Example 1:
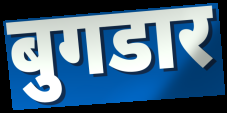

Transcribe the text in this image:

बुगडार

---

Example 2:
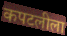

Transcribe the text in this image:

कपटलीला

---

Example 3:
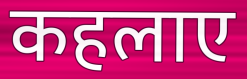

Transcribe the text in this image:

कहलाए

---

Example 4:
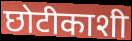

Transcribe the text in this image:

छोटीकाशी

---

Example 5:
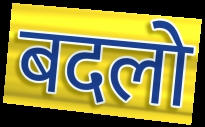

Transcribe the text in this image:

बदलो